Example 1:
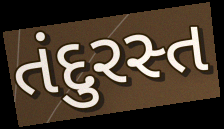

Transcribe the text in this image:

તંદુરસ્ત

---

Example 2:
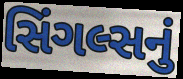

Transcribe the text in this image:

સિંગલ્સનું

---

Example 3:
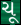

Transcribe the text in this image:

ચૂ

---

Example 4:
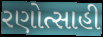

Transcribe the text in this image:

રણોત્સાહી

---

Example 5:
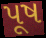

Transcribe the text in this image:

પૂષ